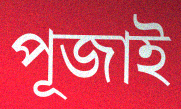
পূজাই